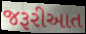
જરૂરીઆત